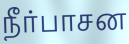
நீர்பாசன